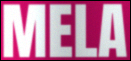
MELA